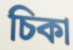
চিকা